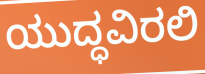
ಯುದ್ಧವಿರಲಿ